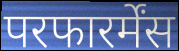
परफारर्मेंस